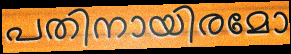
പതിനായിരമോ